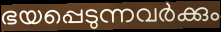
ഭയപ്പെടുന്നവർക്കും